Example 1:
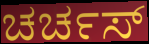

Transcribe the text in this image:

ಚರ್ಚಸ್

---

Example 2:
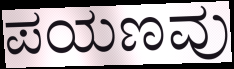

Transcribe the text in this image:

ಪಯಣವು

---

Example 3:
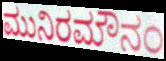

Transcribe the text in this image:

ಮುನಿರಮೌನಂ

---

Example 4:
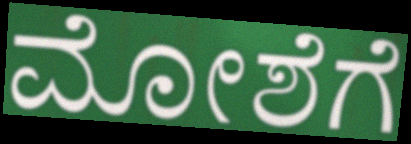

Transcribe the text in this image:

ಮೋಶೆಗೆ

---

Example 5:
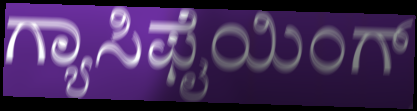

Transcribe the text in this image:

ಗ್ಯಾಸಿಫೈಯಿಂಗ್